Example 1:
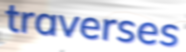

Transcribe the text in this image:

traverses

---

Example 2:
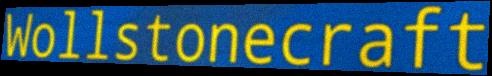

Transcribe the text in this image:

Wollstonecraft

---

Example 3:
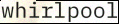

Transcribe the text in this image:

whirlpool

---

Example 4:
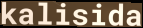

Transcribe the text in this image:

kalisida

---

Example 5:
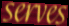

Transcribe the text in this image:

serves